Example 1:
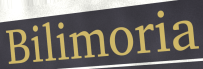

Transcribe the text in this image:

Bilimoria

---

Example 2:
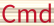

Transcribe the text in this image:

Cmd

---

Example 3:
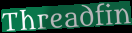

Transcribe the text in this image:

Threadfin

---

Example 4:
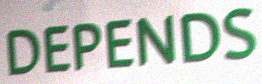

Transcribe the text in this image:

DEPENDS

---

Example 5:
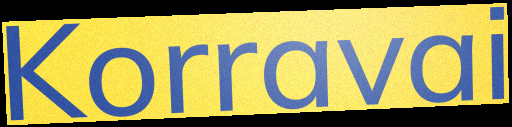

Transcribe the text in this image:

Korravai